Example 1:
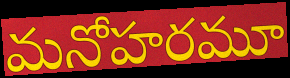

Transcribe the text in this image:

మనోహరమూ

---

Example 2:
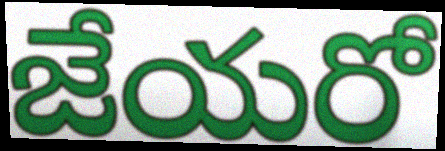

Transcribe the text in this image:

జేయరో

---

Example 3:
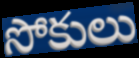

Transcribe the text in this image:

సోకులు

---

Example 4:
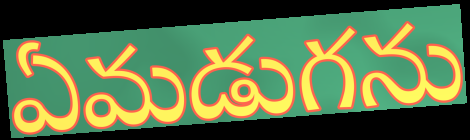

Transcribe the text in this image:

ఏమడుగను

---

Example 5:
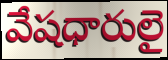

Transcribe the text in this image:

వేషధారులై